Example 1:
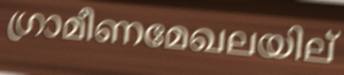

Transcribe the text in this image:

ഗ്രാമീണമേഖലയില്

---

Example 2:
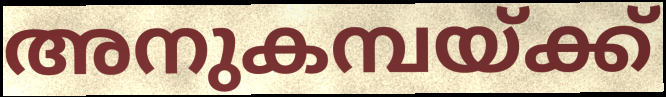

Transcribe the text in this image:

അനുകമ്പയ്ക്ക്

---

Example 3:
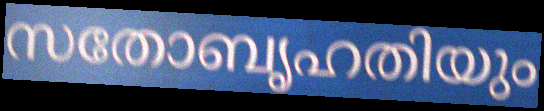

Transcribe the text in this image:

സതോബൃഹതിയും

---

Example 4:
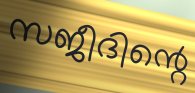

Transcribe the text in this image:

സജീദിന്റെ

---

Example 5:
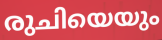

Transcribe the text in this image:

രുചിയെയും